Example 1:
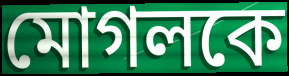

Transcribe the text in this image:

মোগলকে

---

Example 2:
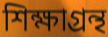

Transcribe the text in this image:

শিক্ষাগ্রন্থ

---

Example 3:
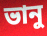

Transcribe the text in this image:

ভানু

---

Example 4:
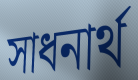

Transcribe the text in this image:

সাধনার্থ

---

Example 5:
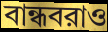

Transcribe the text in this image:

বান্ধবরাও